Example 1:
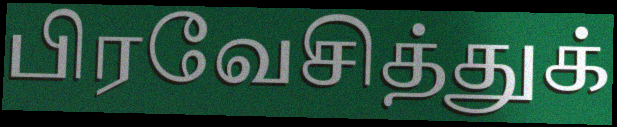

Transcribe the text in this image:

பிரவேசித்துக்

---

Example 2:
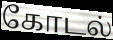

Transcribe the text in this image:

கோடல்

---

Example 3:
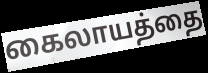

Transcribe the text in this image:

கைலாயத்தை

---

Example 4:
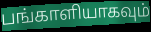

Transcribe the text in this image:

பங்காளியாகவும்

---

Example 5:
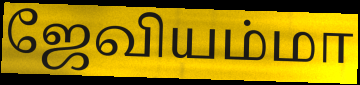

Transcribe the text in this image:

ஜேவியம்மா